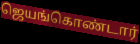
ஜெயங்கொண்டார்